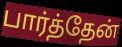
பார்த்தேன்